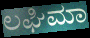
ಲಘಿಮಾ